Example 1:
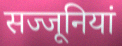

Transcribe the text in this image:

सज्जूनियां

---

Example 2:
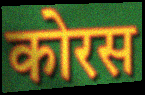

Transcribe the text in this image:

कोरस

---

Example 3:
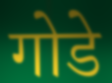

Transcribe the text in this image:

गोडे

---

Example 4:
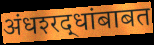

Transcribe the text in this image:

अंधश्रद्धांबाबत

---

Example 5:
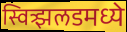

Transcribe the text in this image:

स्वित्र्झलडमध्ये